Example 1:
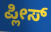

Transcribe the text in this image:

ಪ್ಲೀಸ್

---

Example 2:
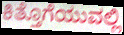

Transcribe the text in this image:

ಕಿತ್ತೊಗೆಯುವಲ್ಲಿ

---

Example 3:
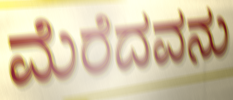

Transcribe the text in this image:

ಮೆರೆದವನು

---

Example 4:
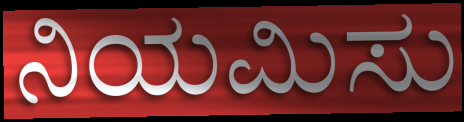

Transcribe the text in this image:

ನಿಯಮಿಸು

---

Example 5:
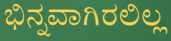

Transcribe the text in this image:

ಭಿನ್ನವಾಗಿರಲಿಲ್ಲ